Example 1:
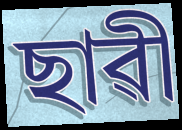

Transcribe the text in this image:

ছাৱী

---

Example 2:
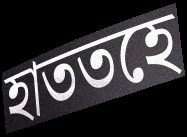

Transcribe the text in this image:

হাততহে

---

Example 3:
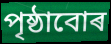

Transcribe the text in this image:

পৃষ্ঠাবোৰ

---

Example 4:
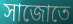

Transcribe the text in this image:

সাজোতে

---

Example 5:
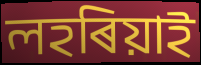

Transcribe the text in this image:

লহৰিয়াই